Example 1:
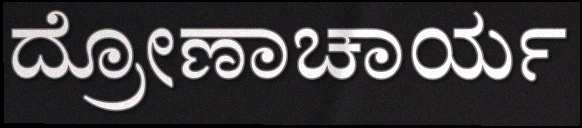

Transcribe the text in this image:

ದ್ರೋಣಾಚಾರ್ಯ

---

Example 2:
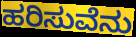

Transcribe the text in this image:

ಹರಿಸುವೆನು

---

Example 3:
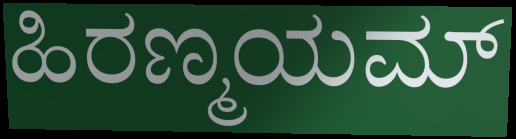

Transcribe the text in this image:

ಹಿರಣ್ಮಯಮ್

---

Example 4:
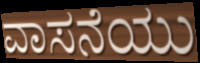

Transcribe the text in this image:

ವಾಸನೆಯು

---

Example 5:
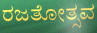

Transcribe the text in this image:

ರಜತೋತ್ಸವ